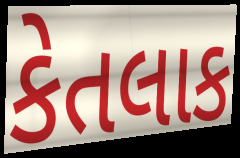
કેતલાક